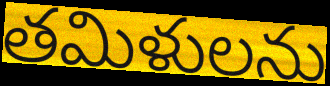
తమిళులను